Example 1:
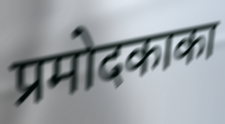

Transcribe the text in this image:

प्रमोदकाका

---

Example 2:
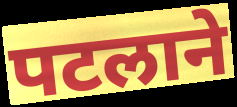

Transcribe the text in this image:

पटलाने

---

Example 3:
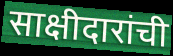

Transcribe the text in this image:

साक्षीदारांची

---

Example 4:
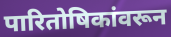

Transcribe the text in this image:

पारितोषिकांवरून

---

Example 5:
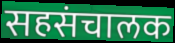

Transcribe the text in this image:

सहसंचालक